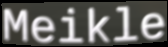
Meikle